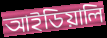
আইডিয়ালি